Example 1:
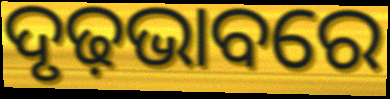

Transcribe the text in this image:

ଦୃଢ଼ଭାବରେ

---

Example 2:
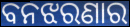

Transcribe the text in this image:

ବନଝରଣାର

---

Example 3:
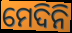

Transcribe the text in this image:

ମେଦିନି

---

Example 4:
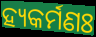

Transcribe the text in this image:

ହ୍ୟକର୍ମଣଃ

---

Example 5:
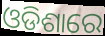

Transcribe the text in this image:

ଓଡିଶାରେ